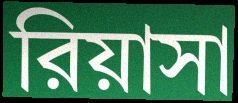
রিয়াসা